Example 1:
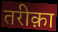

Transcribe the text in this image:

तरीक़ा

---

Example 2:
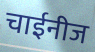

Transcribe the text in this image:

चाईनीज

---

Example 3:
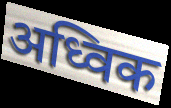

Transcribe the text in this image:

अध्विक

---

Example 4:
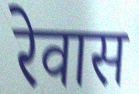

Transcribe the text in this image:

रेवास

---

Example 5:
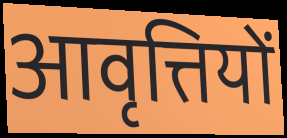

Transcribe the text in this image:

आवृत्तियों